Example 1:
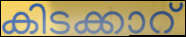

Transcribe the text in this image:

കിടക്കാറ്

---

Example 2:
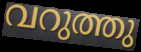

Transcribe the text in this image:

വറുത്തു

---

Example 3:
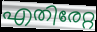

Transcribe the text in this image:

എതിരേറ്റ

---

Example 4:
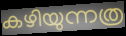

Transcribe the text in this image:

കഴിയുന്നത്ര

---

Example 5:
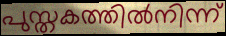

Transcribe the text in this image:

പുസ്തകത്തിൽനിന്ന്